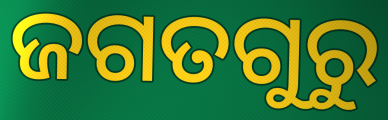
ଜଗତଗୁରୁ